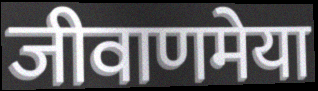
जीवाणमेया